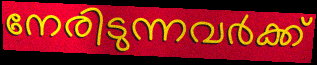
നേരിടുന്നവർക്ക്